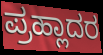
ಪ್ರಹ್ಲಾದರ